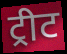
ट्रीट